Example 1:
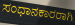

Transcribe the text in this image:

ಸಂಧಾನಕಾರರಾಗಿ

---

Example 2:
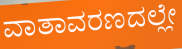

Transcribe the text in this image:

ವಾತಾವರಣದಲ್ಲೇ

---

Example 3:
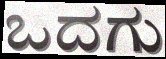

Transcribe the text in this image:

ಒದಗು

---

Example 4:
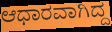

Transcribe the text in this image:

ಆಧಾರವಾಗಿದ್ದ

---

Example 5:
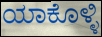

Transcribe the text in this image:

ಯಾಕೊಳ್ಳಿ